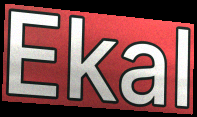
Ekal